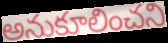
అనుకూలించని